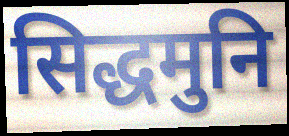
सिद्धमुनि